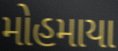
મોહમાયા